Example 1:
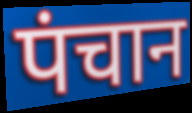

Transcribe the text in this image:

पंचान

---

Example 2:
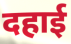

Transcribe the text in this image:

दहाई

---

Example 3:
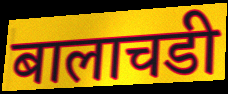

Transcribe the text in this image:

बालाचडी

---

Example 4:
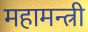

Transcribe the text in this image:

महामन्त्री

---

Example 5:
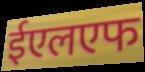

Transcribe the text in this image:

ईएलएफ